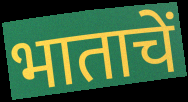
भाताचें